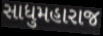
સાધુમહારાજ